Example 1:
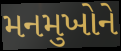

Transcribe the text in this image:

મનમુખોને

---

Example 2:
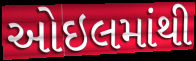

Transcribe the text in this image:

ઓઇલમાંથી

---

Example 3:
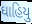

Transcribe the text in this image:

ઘાહિયુ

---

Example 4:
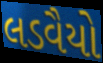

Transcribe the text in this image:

લડવૈયો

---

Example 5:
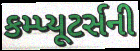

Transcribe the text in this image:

કમ્પ્યૂટર્સની